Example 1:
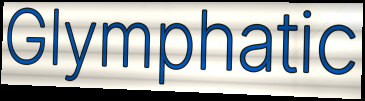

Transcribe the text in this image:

Glymphatic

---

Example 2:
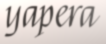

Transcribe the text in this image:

yapera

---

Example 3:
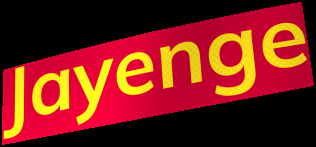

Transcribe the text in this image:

Jayenge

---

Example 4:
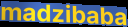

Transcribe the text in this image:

madzibaba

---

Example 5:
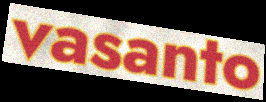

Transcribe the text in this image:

vasanto